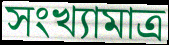
সংখ্যামাত্র